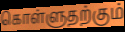
கொள்ளுதற்கும்